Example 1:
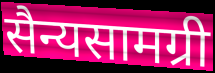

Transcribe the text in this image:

सैन्यसामग्री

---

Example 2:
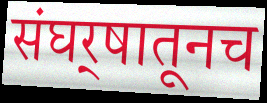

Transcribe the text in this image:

संघर्षातूनच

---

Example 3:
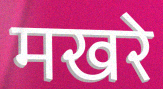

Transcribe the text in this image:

मखरे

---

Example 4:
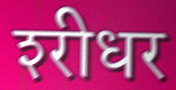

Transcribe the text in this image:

श्रीधर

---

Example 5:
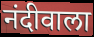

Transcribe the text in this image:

नंदीवाला